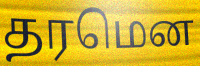
தரமென